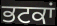
ਭਟਕਾਂ